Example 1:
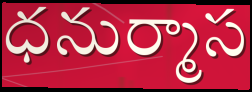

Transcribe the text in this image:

ధనుర్మాస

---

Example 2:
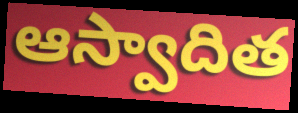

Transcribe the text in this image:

ఆస్వాదిత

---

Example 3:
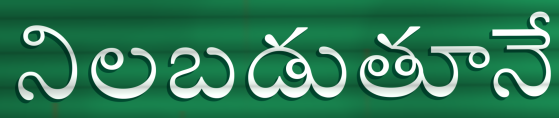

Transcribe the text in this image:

నిలబడుతూనే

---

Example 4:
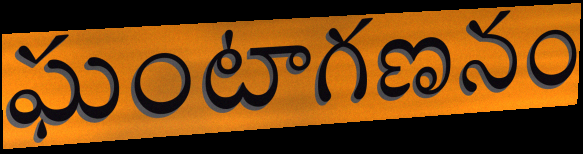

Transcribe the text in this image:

ఘంటాగణనం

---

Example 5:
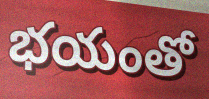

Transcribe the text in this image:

భయంతో